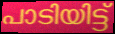
പാടിയിട്ട്